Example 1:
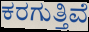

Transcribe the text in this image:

ಕರಗುತ್ತಿವೆ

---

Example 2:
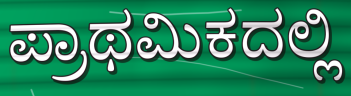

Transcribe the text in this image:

ಪ್ರಾಥಮಿಕದಲ್ಲಿ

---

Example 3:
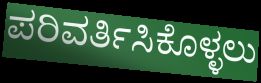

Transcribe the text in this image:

ಪರಿವರ್ತಿಸಿಕೊಳ್ಳಲು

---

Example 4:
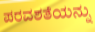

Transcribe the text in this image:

ಪರವಶತೆಯನ್ನು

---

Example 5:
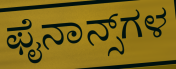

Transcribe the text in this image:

ಫೈನಾನ್ಸ್‌ಗಳ